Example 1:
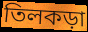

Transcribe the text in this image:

তিলকড়া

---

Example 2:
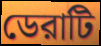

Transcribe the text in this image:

ডেরাটি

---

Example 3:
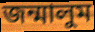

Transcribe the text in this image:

জন্মালুম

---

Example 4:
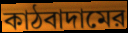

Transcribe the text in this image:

কাঠবাদামের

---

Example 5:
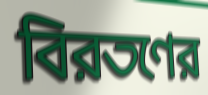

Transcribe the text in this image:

বিরতণের